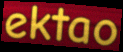
ektao